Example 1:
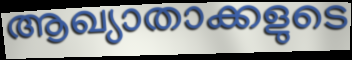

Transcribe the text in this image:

ആഖ്യാതാക്കളുടെ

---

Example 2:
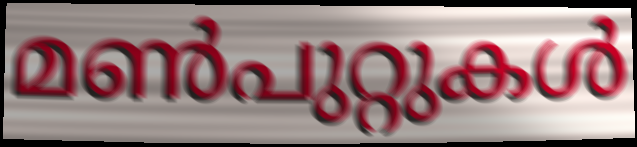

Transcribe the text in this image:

മൺപുറ്റുകൾ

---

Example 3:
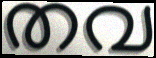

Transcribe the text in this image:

തവ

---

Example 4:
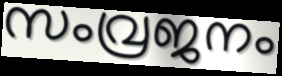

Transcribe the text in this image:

സംവ്രജനം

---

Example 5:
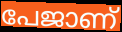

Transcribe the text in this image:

പേജാണ്